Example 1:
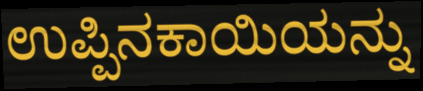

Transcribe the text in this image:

ಉಪ್ಪಿನಕಾಯಿಯನ್ನು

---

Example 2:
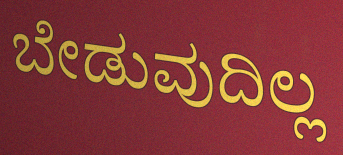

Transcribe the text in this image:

ಬೇಡುವುದಿಲ್ಲ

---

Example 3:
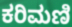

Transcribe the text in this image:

ಕರಿಮಣಿ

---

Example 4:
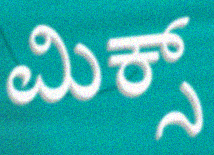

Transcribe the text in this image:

ಮಿಕ್ಸ್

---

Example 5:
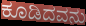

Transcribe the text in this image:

ಕೂಡಿದವನು